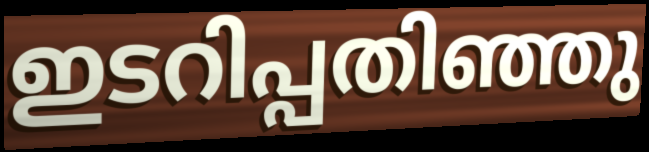
ഇടറിപ്പതിഞ്ഞു